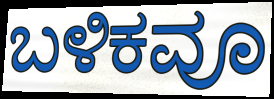
ಬಳಿಕವೂ